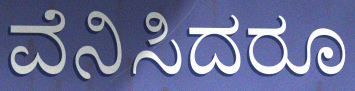
ವೆನಿಸಿದರೂ